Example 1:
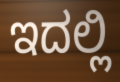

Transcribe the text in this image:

ಇದಲ್ಲಿ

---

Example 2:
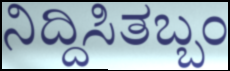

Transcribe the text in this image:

ನಿದ್ದಿಸಿತಬ್ಬಂ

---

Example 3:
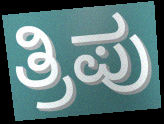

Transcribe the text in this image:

ತ್ರಿಪು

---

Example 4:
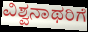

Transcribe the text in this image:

ವಿಶ್ವನಾಥರಿಗೆ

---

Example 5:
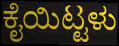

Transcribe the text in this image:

ಕೈಯಿಟ್ಟಳು